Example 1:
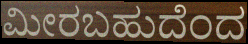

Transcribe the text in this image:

ಮೀರಬಹುದೆಂದ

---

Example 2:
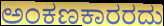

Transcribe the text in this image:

ಅಂಕಣಕಾರರದು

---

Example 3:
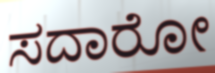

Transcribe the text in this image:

ಸದಾರೋ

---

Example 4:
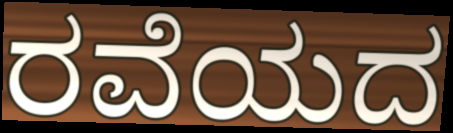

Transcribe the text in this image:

ರವೆಯದ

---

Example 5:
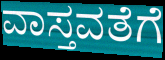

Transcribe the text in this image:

ವಾಸ್ತವತೆಗೆ